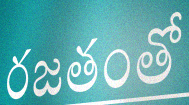
రజతంతో